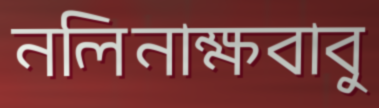
নলিনাক্ষবাবু